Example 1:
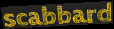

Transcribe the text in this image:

scabbard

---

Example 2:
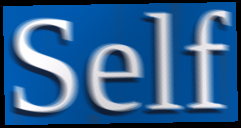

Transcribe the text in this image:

Self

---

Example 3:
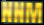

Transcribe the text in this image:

NNM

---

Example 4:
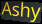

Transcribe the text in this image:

Ashy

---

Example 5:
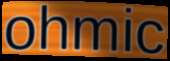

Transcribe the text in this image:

ohmic